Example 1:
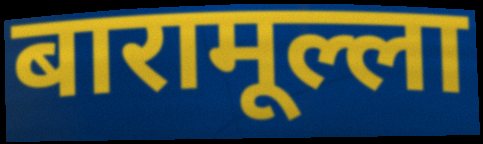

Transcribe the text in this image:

बारामूल्ला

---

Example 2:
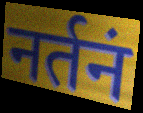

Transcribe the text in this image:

नर्तनं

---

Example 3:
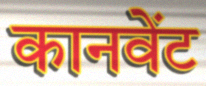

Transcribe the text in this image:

कानवेंट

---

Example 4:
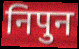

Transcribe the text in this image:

निपुन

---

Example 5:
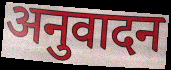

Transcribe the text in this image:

अनुवादन